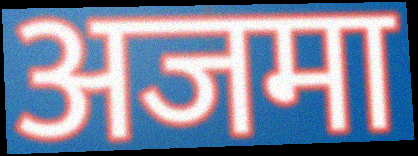
अजमा